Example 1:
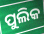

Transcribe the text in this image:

ପୁଲିକ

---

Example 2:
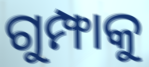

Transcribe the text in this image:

ଗୁମ୍ଫାକୁ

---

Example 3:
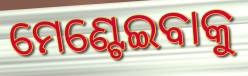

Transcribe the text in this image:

ମେଣ୍ଟେଇବାକୁ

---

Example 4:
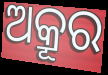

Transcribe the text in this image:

ଅକ୍ରୂର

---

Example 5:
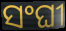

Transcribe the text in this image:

ସଂଘୀ